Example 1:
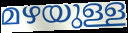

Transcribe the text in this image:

മഴയുള്ള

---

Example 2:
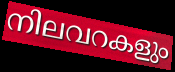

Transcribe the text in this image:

നിലവറകളും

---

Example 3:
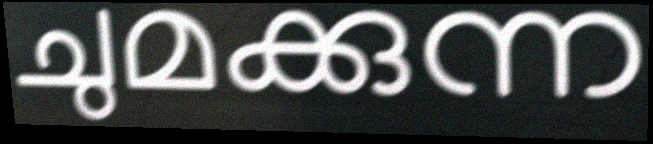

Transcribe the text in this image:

ചുമക്കുന്ന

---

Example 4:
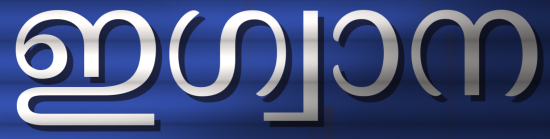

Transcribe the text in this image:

ഇഗ്വാന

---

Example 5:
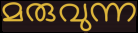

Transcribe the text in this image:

മരുവുന്ന